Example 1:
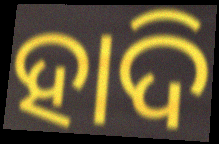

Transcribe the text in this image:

ହାଦି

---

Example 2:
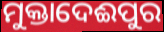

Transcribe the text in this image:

ମୁକ୍ତାଦେଈପୁର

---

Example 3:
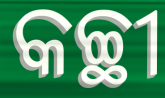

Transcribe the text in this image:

କଚ୍ଛୀ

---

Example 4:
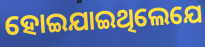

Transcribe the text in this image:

ହୋଇଯାଇଥିଲେଯେ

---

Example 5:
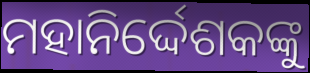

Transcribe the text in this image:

ମହାନିର୍ଦ୍ଦେଶକଙ୍କୁ